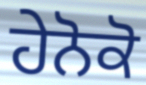
ਹੇਨੋਕੋ